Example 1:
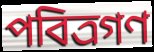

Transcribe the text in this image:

পবিত্রগণ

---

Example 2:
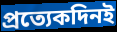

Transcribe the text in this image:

প্রত্যেকদিনই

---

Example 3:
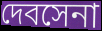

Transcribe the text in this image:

দেবসেনা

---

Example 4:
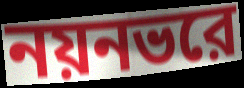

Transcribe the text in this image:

নয়নভরে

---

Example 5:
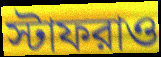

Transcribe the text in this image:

স্টাফরাও